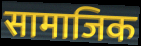
सामाजिक